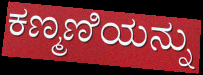
ಕಣ್ಮಣಿಯನ್ನು